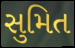
સુમિત